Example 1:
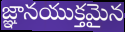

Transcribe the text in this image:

జ్ఞానయుక్తమైన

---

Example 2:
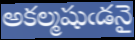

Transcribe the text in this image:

అకల్మషుఁడనై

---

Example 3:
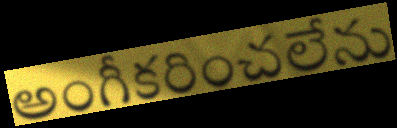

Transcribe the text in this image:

అంగీకరించలేను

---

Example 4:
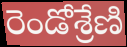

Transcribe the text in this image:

రెండోశ్రేణి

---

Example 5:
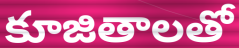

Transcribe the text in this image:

కూజితాలతో